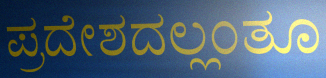
ಪ್ರದೇಶದಲ್ಲಂತೂ